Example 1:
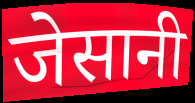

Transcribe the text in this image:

जेसानी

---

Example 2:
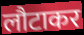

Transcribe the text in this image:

लौटाकर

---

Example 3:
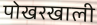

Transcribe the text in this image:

पोखरखाली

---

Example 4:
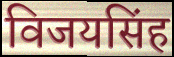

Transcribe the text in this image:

विजयसिंह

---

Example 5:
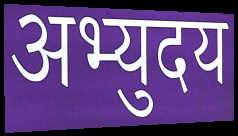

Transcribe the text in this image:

अभ्युदय